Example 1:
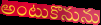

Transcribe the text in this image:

అంటుకొనును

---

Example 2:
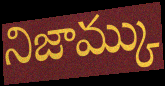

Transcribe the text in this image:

నిజామ్కు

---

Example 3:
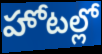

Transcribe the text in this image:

హోటల్లో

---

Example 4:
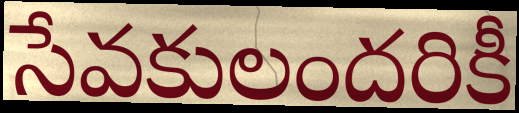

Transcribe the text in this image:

సేవకులందరికీ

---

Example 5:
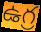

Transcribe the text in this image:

ఉగ్ర